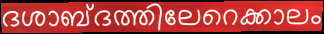
ദശാബ്ദത്തിലേറെക്കാലം